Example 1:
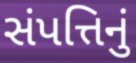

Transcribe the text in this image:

સંપત્તિનું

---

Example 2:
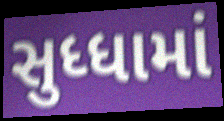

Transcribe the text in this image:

સુધ્ધામાં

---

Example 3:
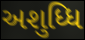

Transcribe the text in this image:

અશુધ્ધિ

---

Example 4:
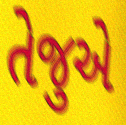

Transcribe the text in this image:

તેજુએ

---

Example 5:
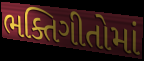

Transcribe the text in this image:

ભક્તિગીતોમાં